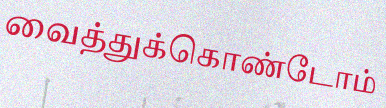
வைத்துக்கொண்டோம்